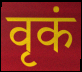
वृकं